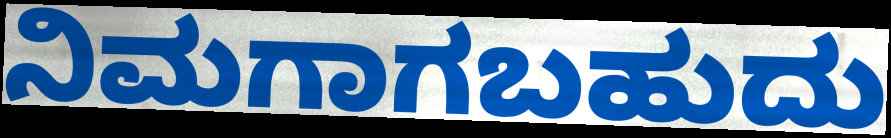
ನಿಮಗಾಗಬಹುದು